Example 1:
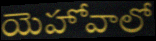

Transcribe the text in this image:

యెహోవాలో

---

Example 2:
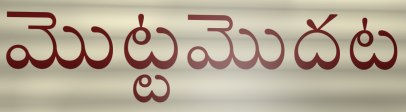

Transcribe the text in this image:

మొట్టమొదట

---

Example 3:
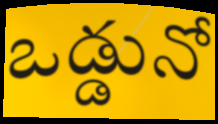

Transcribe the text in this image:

ఒడ్డునో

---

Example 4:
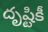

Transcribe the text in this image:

దృష్టికీ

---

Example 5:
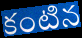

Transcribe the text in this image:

కంటిన